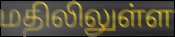
மதிலிலுள்ள